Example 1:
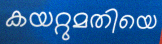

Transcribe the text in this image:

കയറ്റുമതിയെ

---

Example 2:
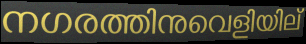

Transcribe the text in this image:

നഗരത്തിനുവെളിയില്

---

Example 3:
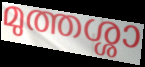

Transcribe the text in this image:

മുത്തശ്ശാ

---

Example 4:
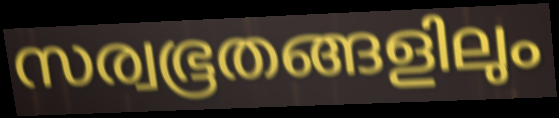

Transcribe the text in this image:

സര്വഭൂതങ്ങളിലും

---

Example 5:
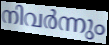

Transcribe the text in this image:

നിവർന്നും